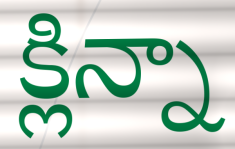
క్లిన్నా